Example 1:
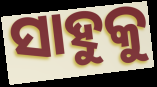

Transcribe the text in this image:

ସାହୁକୁ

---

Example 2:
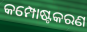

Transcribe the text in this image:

କମ୍ପୋଷ୍ଟକରଣ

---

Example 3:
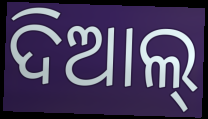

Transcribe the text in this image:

ଦିଆଲ୍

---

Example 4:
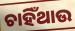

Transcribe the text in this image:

ଚାହିଁଥାଉ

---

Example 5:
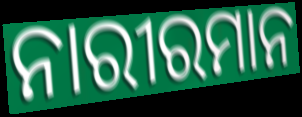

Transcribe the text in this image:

ନାରୀରମାନ